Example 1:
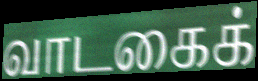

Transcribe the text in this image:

வாடகைக்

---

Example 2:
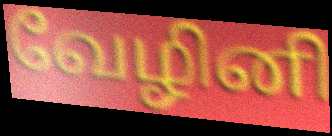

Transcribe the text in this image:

வேழினி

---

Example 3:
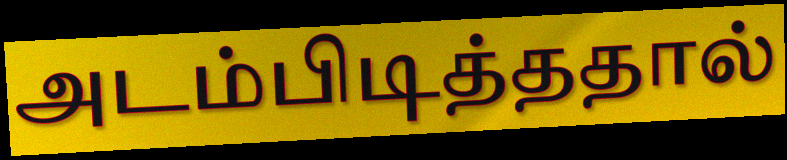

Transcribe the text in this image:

அடம்பிடித்ததால்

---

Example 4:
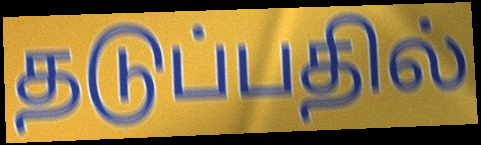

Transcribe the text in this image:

தடுப்பதில்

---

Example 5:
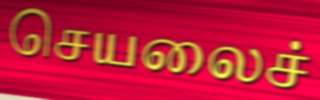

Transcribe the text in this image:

செயலைச்